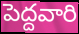
పెద్దవారి